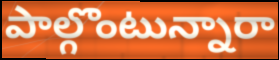
పాల్గొంటున్నారా